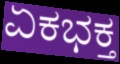
ಏಕಭಕ್ತ